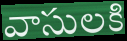
వాసులకి